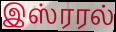
இஸ்ரரல்